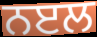
ਨੲਲ